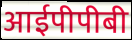
आईपीपीबी